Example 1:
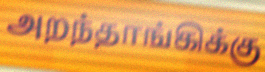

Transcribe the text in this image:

அறந்தாங்கிக்கு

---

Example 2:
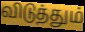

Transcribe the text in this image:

விடுத்தும்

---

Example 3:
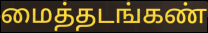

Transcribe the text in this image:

மைத்தடங்கண்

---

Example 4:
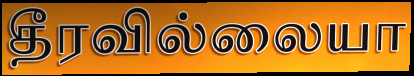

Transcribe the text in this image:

தீரவில்லையா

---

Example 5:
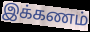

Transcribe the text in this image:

இக்கணம்